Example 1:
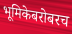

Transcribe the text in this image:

भूमिकेबरोबरच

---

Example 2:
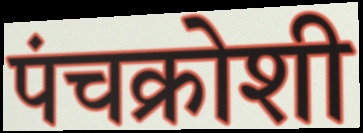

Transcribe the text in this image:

पंचक्रोशी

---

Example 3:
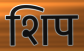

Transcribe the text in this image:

शिप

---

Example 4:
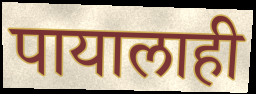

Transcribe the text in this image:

पायालाही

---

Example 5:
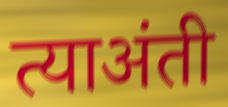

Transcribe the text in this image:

त्याअंती